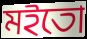
মইতো